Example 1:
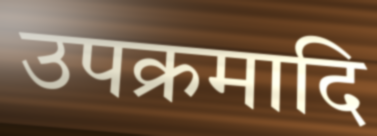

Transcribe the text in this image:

उपक्रमादि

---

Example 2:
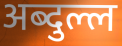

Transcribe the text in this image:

अब्दुल्ल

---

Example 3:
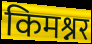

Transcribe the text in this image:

किमश्नर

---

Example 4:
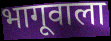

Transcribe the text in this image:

भागूवाला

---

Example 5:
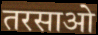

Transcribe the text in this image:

तरसाओ